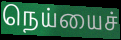
நெய்யைச்